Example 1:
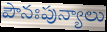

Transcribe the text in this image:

పౌనఃపున్యాలు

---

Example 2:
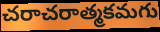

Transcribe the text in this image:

చరాచరాత్మకమగు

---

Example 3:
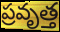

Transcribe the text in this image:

ప్రవృత్త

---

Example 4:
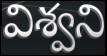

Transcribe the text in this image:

విశ్వని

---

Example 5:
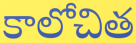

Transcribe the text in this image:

కాలోచిత